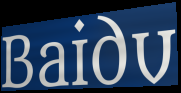
Baidu